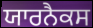
ਯਾਰਨੈਕਸ